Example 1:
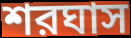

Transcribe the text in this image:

শরঘাস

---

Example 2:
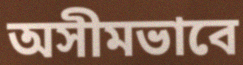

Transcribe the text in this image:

অসীমভাবে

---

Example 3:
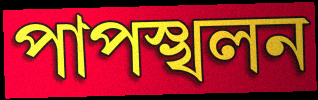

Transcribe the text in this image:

পাপস্খলন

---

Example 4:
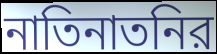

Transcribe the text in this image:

নাতিনাতনির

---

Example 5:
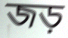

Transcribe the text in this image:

জড়